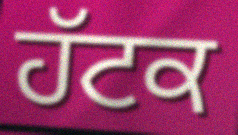
ਹੱਟਕ